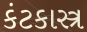
કંટકાસ્ત્ર